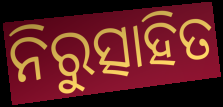
ନିରୁତ୍ସାହିତ